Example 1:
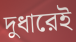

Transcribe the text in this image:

দুধারেই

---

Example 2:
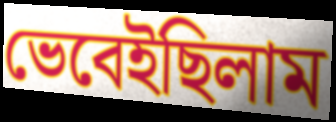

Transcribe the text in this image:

ভেবেইছিলাম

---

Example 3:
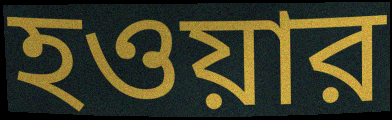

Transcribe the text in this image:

হওয়ার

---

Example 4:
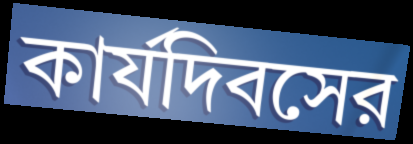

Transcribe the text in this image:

কার্যদিবসের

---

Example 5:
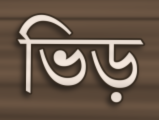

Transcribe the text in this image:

ভিড়